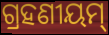
ଗ୍ରହଣୀୟମ୍